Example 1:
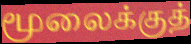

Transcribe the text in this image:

மூலைக்குத்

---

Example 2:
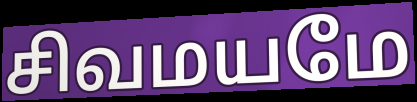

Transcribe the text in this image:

சிவமயமே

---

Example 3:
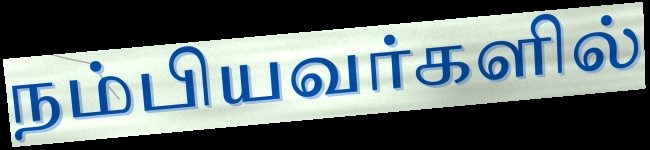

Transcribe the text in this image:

நம்பியவர்களில்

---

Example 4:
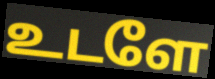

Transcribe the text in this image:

உடளே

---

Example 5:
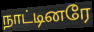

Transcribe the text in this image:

நாட்டினரே